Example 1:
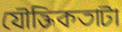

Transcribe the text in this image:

যৌক্তিকতাটা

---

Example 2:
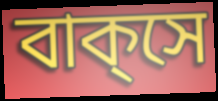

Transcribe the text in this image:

বাক্‌সে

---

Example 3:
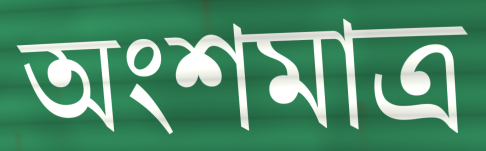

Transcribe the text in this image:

অংশমাত্র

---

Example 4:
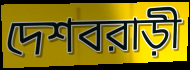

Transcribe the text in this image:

দেশবরাড়ী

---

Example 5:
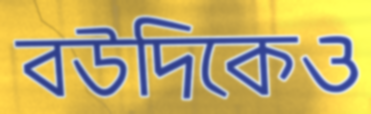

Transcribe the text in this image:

বউদিকেও